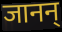
जानन्